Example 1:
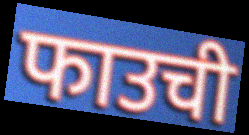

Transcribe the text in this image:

फाउची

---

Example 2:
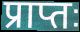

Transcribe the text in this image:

प्राप्तः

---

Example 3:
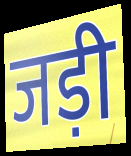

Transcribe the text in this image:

जड़ी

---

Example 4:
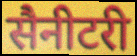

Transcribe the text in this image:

सैनीटरी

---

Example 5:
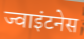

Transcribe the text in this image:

ज्वाइंटनेस